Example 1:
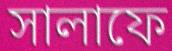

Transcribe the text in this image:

সালাফে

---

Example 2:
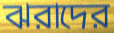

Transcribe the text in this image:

ঝরাদের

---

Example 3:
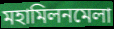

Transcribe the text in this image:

মহামিলনমেলা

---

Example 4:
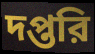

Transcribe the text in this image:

দপ্তরি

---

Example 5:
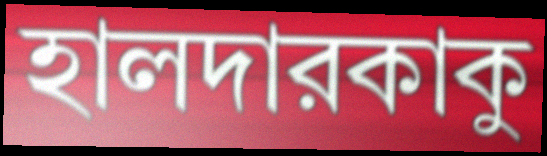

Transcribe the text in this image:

হালদারকাকু